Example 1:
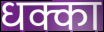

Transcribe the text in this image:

धक्का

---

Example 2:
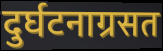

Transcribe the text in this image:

दुर्घटनाग्रसत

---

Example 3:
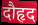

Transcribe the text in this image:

दौहृद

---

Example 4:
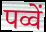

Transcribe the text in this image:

पव्वें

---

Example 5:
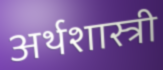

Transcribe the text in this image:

अर्थशास्त्री